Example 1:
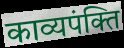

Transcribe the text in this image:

काव्यपंक्ति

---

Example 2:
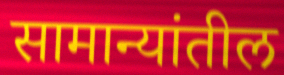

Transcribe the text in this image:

सामान्यांतील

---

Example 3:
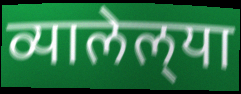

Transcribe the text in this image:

व्यालेल्या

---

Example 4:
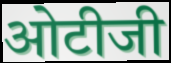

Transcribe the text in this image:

ओटीजी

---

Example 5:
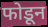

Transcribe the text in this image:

फोडून